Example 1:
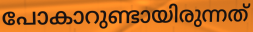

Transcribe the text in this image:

പോകാറുണ്ടായിരുന്നത്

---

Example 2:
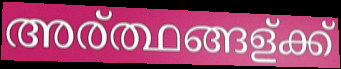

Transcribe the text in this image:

അര്ത്ഥങ്ങള്ക്ക്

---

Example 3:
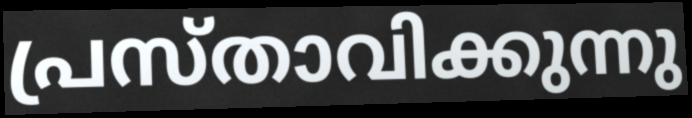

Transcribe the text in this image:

പ്രസ്താവിക്കുന്നു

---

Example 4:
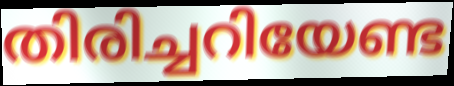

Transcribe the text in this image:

തിരിച്ചറിയേണ്ട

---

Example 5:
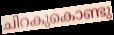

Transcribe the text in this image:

ചിറകുകൊണ്ടു